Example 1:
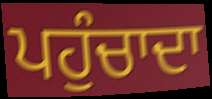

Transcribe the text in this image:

ਪਹੁੰਚਾਦਾ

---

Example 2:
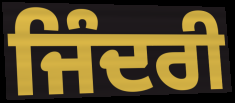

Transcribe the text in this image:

ਜਿੰਦਰੀ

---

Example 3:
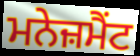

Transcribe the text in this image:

ਮਨੇਜ਼ਮੈਂਟ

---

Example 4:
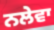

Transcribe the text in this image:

ਨਲੇਵਾ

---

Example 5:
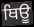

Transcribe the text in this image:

ਥਿਊ